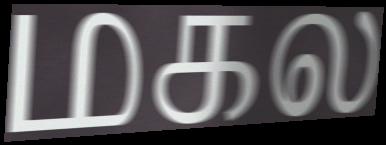
மகல